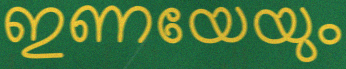
ഇണയേയും